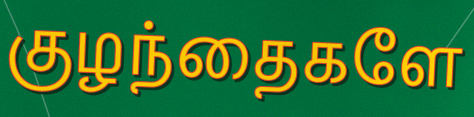
குழந்தைகளே